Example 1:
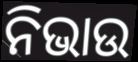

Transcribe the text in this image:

ନିଭାଉ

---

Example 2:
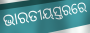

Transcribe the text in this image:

ଭାରତୀୟସ୍ତରରେ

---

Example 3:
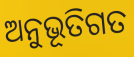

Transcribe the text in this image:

ଅନୁଭୂତିଗତ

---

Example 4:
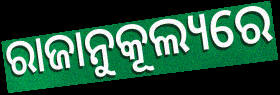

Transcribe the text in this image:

ରାଜାନୁକୂଲ୍ୟରେ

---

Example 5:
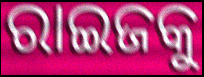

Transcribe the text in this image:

ରାଇଜକୁ